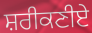
ਸ਼ਰੀਕਣੀਏ